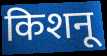
किशनू